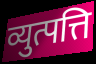
व्युत्पत्ति